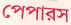
পেপারস